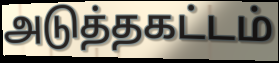
அடுத்தகட்டம்